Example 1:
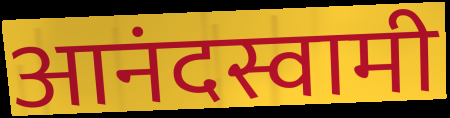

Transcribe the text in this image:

आनंदस्वामी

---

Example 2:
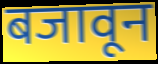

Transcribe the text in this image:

बजावून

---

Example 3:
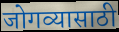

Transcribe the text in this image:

जोगव्यासाठी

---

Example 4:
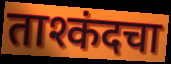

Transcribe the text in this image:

ताश्कंदचा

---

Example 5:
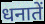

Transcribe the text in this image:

धनातें